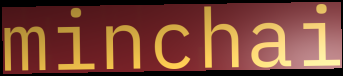
minchai